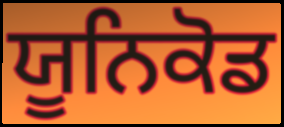
ਯੂਨਿਕੋਡ